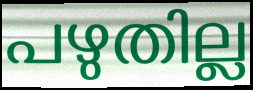
പഴുതില്ല